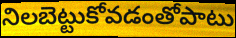
నిలబెట్టుకోవడంతోపాటు